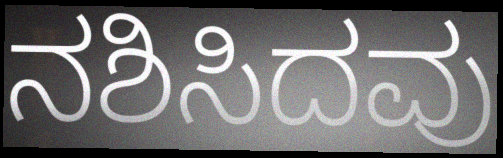
ನಶಿಸಿದವು